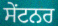
ਸੇਂਟਨਰ